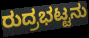
ರುದ್ರಭಟ್ಟನು